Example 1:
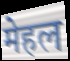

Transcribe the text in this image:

मेहल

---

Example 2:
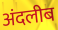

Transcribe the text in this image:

अंदलीब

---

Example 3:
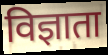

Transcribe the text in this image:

विज्ञाता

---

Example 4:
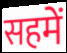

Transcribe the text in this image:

सहमें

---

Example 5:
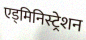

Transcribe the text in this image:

एड्मिनिस्ट्रेशन